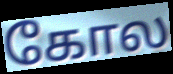
கோல